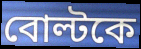
বোল্টকে